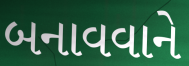
બનાવવાને